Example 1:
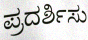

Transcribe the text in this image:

ಪ್ರದರ್ಶಿಸು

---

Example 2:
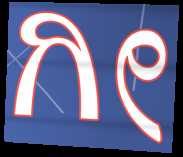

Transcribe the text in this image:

ಗೀ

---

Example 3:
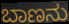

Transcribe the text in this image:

ಬಾಣನು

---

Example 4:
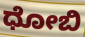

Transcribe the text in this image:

ಧೋಬಿ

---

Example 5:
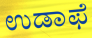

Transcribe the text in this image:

ಉಡಾಫೆ